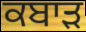
ਕਬਾੜ